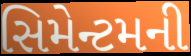
સિમેન્ટમની